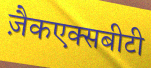
ज़ैकएक्सबीटी